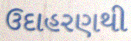
ઉદાહરણથી